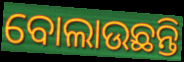
ବୋଲାଉଛନ୍ତି